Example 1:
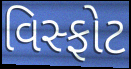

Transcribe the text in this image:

વિસ્ફોટ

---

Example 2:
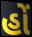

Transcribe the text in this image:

હોં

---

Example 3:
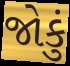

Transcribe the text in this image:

જોકું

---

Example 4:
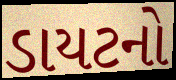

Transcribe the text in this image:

ડાયટનો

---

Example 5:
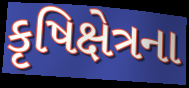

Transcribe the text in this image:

કૃષિક્ષેત્રના